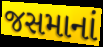
જસમાનાં